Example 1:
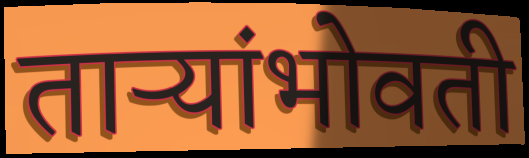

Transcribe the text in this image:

ताऱ्यांभोवती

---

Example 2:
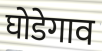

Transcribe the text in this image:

घोडेगाव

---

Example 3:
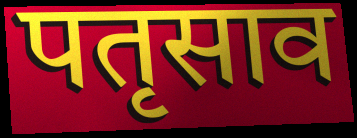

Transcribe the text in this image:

पतृसाव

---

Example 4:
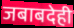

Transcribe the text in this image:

जबाबदेही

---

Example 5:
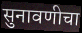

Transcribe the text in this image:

सुनावणीचा